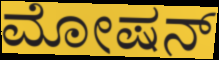
ಮೋಷನ್